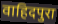
वाहिदपुरा